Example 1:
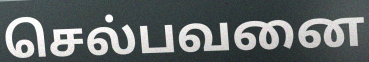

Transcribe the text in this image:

செல்பவனை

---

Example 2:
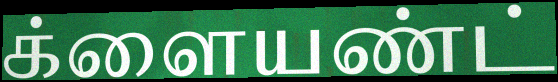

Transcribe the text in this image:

க்ளையண்ட்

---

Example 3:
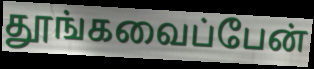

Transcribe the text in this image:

தூங்கவைப்பேன்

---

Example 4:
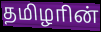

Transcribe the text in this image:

தமிழரின்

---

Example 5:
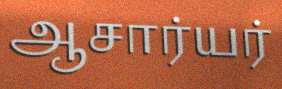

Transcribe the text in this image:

ஆசார்யர்